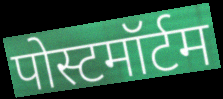
पोस्टमॉर्टम